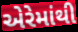
એરેમાંથી